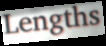
Lengths